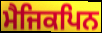
ਮੈਜਿਕਪਿਨ